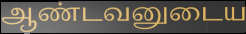
ஆண்டவனுடைய